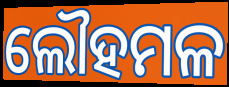
ଲୌହମଳ